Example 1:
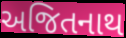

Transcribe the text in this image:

અજિતનાથ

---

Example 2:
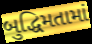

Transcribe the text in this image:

બુદ્ધિમતામાં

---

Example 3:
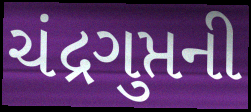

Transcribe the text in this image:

ચંદ્રગુપ્તની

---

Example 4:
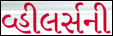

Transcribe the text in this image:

વ્હીલર્સની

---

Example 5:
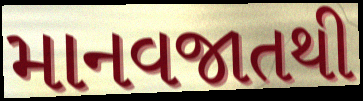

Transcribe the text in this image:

માનવજાતથી